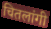
चितलांगी